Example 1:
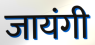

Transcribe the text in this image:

जायंगी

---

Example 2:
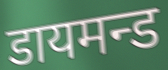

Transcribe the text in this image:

डायमन्ड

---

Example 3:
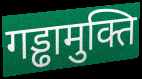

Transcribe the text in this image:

गड्ढामुक्ति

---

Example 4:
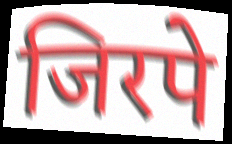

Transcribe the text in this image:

जिरपे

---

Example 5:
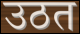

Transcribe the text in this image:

उठत